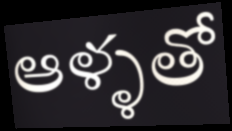
ఆళ్ళతో